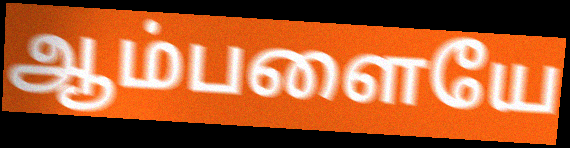
ஆம்பளையே